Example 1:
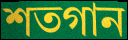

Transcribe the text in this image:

শতগান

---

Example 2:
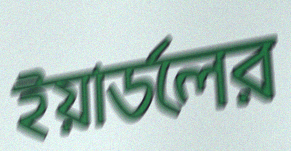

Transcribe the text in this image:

ইয়ার্ডলের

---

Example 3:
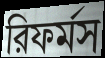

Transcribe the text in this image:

রিফর্মস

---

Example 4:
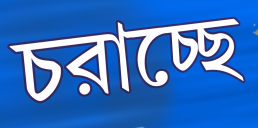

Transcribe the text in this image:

চরাচ্ছে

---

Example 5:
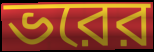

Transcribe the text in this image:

ভরের